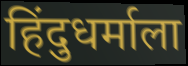
हिंदुधर्माला